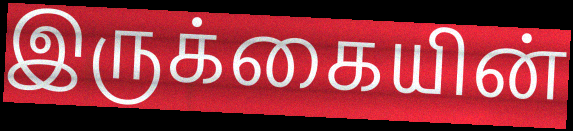
இருக்கையின்